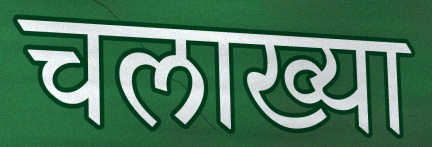
चलाख्या